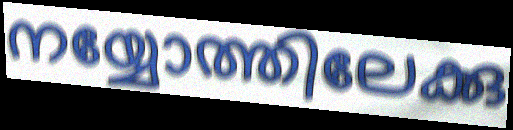
നയ്യോത്തിലേക്കു